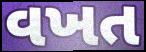
વખત